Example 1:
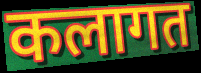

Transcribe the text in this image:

कलागत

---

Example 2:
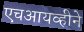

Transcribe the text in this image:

एचआयव्हीने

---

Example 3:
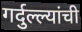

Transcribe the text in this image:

गर्दुल्ल्यांची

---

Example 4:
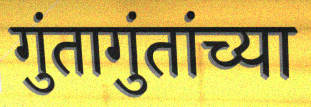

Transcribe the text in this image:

गुंतागुंतांच्या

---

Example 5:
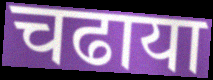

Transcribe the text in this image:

चढाया